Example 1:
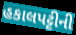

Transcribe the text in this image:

હકાલપટ્ટીની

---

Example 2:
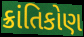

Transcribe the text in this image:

ક્રાંતિકોણ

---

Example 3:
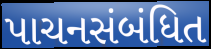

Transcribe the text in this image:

પાચનસંબંધિત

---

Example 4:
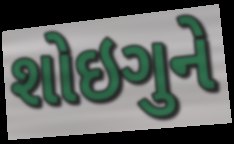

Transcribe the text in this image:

શોઇગુને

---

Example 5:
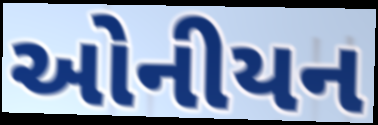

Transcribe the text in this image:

ઓનીયન